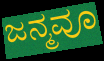
ಜನ್ಮವೂ